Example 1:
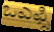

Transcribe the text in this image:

ಒಎಫ್ಸಿ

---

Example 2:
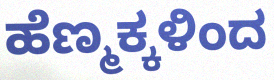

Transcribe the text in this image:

ಹೆಣ್ಮಕ್ಕಳಿಂದ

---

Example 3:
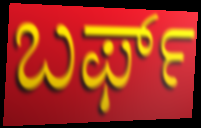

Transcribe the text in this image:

ಬರ್ಫ್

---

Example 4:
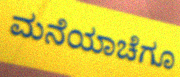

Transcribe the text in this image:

ಮನೆಯಾಚೆಗೂ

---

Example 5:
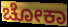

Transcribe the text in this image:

ಚೋಕಾ